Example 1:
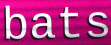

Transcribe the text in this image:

bats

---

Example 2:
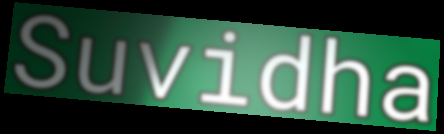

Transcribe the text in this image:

Suvidha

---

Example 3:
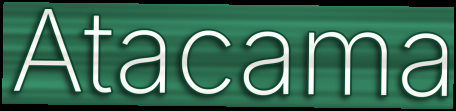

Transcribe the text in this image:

Atacama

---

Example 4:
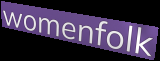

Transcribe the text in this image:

womenfolk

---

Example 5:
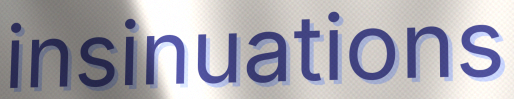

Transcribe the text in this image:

insinuations